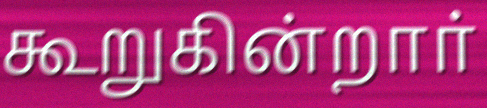
கூறுகின்றார்